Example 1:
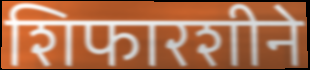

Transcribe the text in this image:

शिफारशीने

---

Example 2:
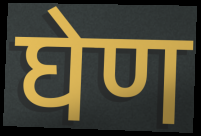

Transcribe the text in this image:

घेण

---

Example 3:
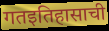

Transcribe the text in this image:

गतइतिहासाची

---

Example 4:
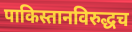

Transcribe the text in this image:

पाकिस्तानविरुद्धच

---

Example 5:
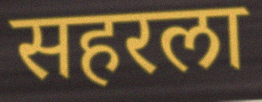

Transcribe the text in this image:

सहरला